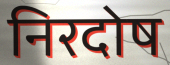
निरदोष